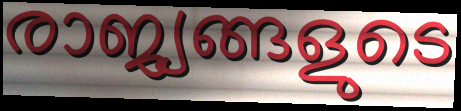
രാജ്യങ്ങളുടെ